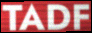
TADF